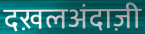
दख़लअंदाज़ी